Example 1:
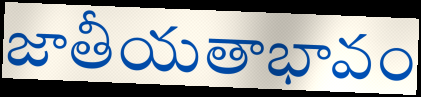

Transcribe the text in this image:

జాతీయతాభావం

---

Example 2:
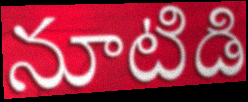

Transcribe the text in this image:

నూటిడి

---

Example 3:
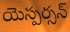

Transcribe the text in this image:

యెస్పర్సన్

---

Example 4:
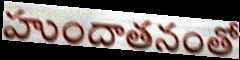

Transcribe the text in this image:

హుందాతనంతో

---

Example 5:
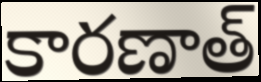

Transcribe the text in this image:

కారణాత్